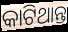
କାଟିଥାନ୍ତ